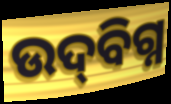
ଉଦ୍‍ବିଗ୍ନ